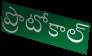
ప్రొటోకాల్